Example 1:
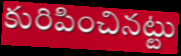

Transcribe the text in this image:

కురిపించినట్టు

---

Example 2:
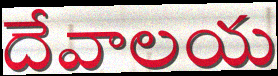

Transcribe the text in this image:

దేవాలయ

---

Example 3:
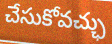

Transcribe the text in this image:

చేసుకోవచ్ఛు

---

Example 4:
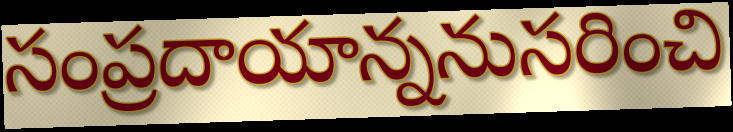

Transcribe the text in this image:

సంప్రదాయాన్ననుసరించి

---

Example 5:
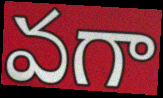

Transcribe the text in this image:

వగా